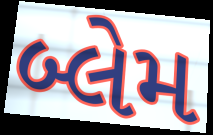
બ્લેમ